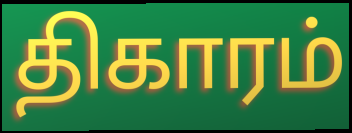
திகாரம்